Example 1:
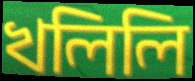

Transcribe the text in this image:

খলিলি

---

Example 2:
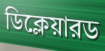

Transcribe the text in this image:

ডিক্লেয়ারড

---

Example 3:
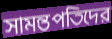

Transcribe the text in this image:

সামন্তপতিদের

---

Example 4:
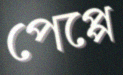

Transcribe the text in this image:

পেপ্পে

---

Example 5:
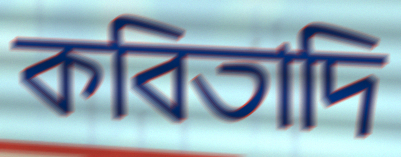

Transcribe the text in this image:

কবিতাদি